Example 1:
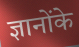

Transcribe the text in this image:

ज्ञानोंके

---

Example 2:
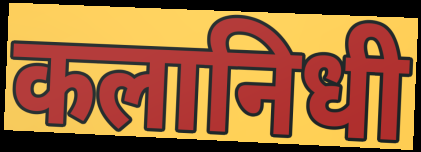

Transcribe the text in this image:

कलानिधी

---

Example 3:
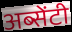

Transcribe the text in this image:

अब्सेंटी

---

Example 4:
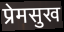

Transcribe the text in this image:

प्रेमसुख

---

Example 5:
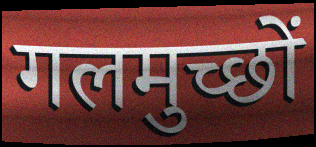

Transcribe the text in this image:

गलमुच्छों